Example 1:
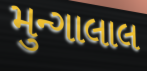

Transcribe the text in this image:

મુન્ગાલાલ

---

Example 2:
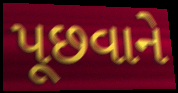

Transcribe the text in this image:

પૂછવાને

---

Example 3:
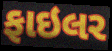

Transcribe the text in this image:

ફાઇલર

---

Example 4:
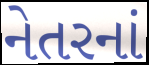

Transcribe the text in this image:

નેતરનાં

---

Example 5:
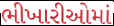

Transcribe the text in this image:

ભીખારીઓમાં